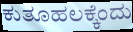
ಕುತೂಹಲಕ್ಕೆಂದು